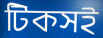
টিকসই